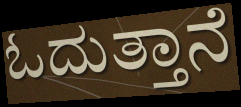
ಓದುತ್ತಾನೆ